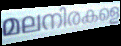
മലനിരകളെ